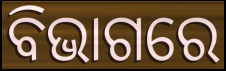
ବିଭାଗରେ